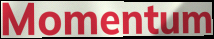
Momentum